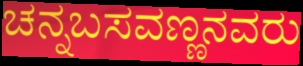
ಚನ್ನಬಸವಣ್ಣನವರು